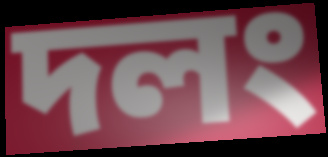
দলং